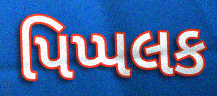
પિપ્પલક